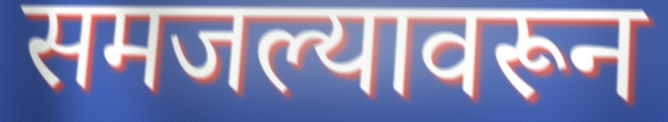
समजल्यावरून